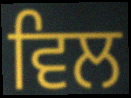
ਵਿਲ